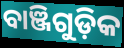
ବାଞ୍ଜିଗୁଡ଼ିକ